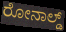
ರೋನಾಲ್ಡ್